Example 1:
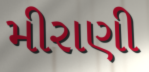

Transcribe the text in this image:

મીરાણી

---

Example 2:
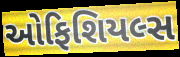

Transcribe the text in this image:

ઓફિશિયલ્સ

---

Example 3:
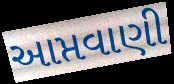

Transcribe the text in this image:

આપ્તવાણી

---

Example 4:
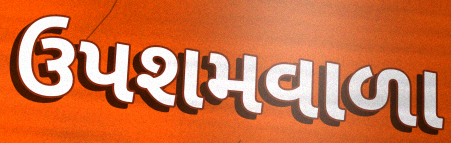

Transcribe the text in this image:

ઉપશમવાળા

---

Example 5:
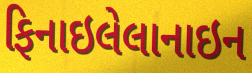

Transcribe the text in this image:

ફિનાઇલેલાનાઇન